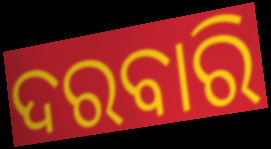
ଦରବାରି